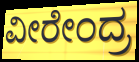
ವೀರೇಂದ್ರ